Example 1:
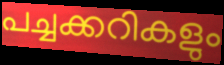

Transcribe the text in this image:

പച്ചക്കറികളും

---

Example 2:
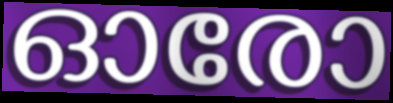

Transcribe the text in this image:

ഓരോ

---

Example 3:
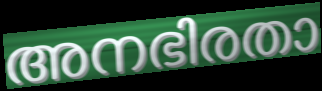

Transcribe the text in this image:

അനഭിരതാ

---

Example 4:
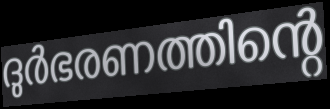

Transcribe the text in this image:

ദുർഭരണത്തിന്റെ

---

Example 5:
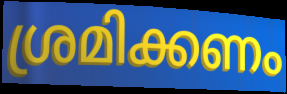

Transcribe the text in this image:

ശ്രമിക്കണം